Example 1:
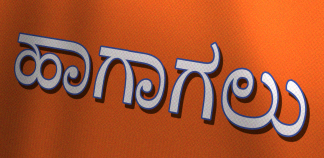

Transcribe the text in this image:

ಹಾಗಾಗಲು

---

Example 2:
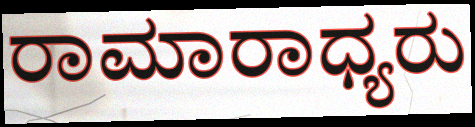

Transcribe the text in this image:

ರಾಮಾರಾಧ್ಯರು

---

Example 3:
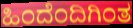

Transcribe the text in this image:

ಹಿಂದೆಂದಿಗಿಂತ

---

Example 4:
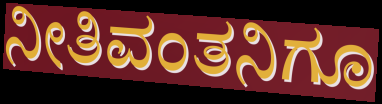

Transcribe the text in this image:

ನೀತಿವಂತನಿಗೂ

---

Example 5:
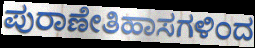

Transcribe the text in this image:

ಪುರಾಣೇತಿಹಾಸಗಳಿಂದ